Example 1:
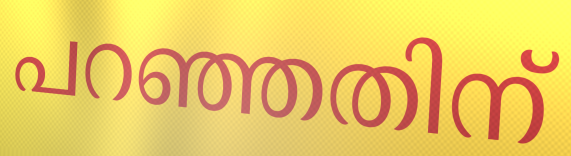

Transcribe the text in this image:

പറഞ്ഞതിന്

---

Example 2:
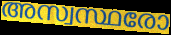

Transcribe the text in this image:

അസ്വസ്ഥരോ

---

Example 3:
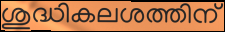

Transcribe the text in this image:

ശുദ്ധികലശത്തിന്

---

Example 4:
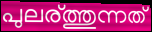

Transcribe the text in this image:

പുലര്ത്തുന്നത്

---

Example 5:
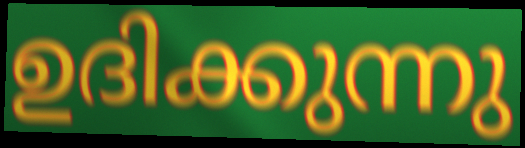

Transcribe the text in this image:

ഉദിക്കുന്നു